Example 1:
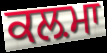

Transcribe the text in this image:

ਕਲ਼ਮਾ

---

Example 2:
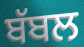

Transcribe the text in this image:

ਬੱਬਲ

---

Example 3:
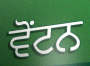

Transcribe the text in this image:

ਵੋਂਟਨ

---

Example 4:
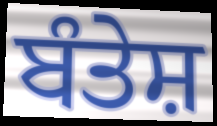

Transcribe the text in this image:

ਬੰਤੇਸ਼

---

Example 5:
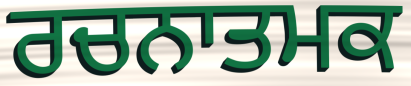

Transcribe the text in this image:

ਰਚਨਾਤਮਕ